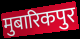
मुबारिकपुर